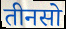
तीनसो